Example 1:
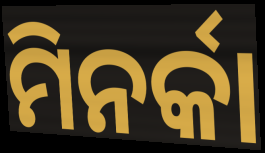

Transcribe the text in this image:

ମିନର୍କା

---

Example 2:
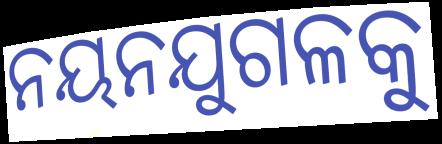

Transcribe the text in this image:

ନୟନଯୁଗଳକୁ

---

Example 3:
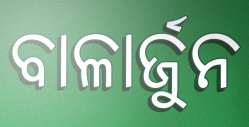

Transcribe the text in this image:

ବାଳାର୍ଜୁନ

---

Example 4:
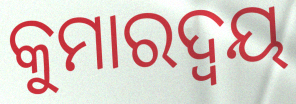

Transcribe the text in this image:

କୁମାରଦ୍ଵୟ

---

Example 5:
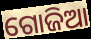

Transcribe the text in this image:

ଗୋଜିଆ